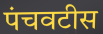
पंचवटीस